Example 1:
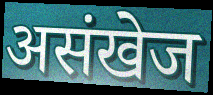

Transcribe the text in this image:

असंखेज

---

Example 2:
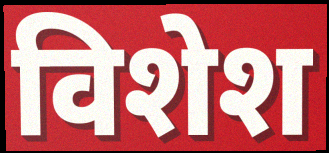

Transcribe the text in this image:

विशेश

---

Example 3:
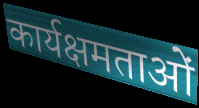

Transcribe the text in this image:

कार्यक्षमताओं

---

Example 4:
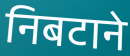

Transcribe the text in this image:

निबटाने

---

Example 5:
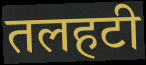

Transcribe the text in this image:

तलहटी